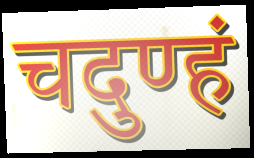
चदुण्हं